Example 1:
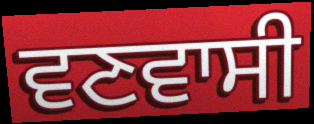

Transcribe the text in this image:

ਵਣਵਾਸੀ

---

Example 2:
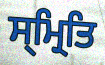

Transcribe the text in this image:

ਸ੍ਮ੍ਰਿਤਿ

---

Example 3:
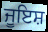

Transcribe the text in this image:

ਜੂਇਸ਼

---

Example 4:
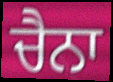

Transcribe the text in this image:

ਚੈਨਾ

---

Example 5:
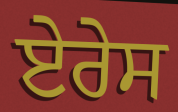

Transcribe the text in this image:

ਏਰੇਸ